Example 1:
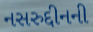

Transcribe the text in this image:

નસરુદ્દીનની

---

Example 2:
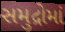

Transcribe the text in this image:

સમુદ્રોમાં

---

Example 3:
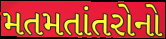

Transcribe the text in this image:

મતમતાંતરોનો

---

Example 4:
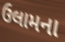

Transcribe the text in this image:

ઉલામના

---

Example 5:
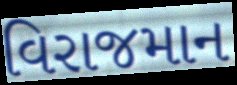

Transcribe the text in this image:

વિરાજમાન